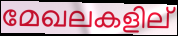
മേഖലകളില്